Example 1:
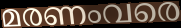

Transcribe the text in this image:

മരണംവരെ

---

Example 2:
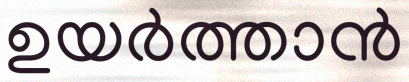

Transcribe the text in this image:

ഉയർത്താൻ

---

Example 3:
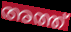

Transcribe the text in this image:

അത്ത്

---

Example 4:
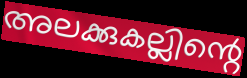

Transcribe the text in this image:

അലക്കുകല്ലിന്റെ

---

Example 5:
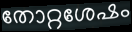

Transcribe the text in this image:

തോറ്റശേഷം